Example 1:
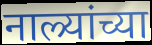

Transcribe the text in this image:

नाल्यांच्या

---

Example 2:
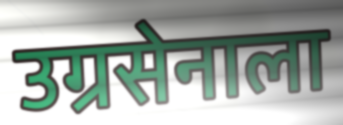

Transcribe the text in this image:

उग्रसेनाला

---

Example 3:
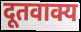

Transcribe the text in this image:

दूतवाक्य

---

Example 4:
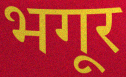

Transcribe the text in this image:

भगूर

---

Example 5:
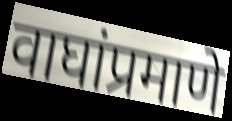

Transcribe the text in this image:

वाघांप्रमाणे